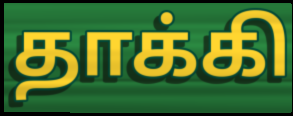
தாக்கி